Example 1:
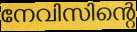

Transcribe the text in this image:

നേവിസിന്റെ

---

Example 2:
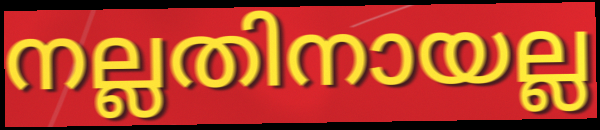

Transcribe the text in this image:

നല്ലതിനായല്ല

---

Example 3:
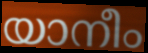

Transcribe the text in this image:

യാനീം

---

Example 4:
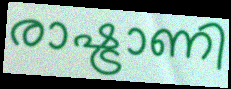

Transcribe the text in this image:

രാഷ്ട്രാണി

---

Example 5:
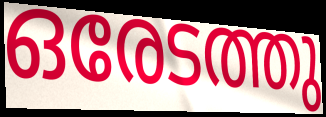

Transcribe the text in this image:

ഒരേടത്തു